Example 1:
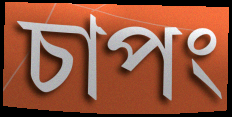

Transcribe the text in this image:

চাপং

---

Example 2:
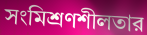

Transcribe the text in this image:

সংমিশ্রণশীলতার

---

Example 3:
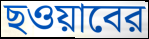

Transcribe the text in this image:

ছওয়াবের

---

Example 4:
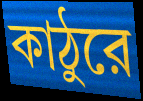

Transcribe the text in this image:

কাঠুরে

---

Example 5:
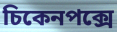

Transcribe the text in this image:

চিকেনপক্সে